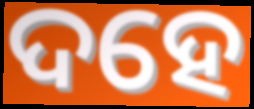
ଦହେ